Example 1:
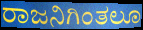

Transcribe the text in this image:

ರಾಜನಿಗಿಂತಲೂ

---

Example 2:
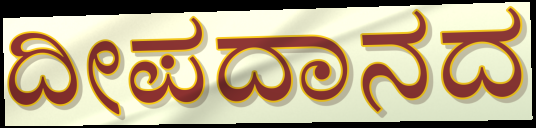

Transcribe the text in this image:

ದೀಪದಾನದ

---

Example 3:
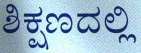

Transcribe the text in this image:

ಶಿಕ್ಷಣದಲ್ಲಿ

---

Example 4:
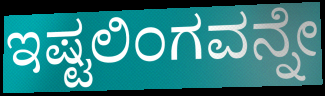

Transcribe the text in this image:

ಇಷ್ಟಲಿಂಗವನ್ನೇ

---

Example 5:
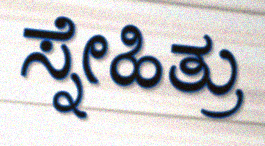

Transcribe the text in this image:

ಸ್ನೇಹಿತ್ರು